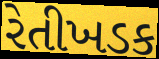
રેતીખડક